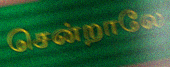
சென்றாலே